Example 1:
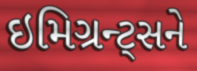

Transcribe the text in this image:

ઇમિગ્રન્ટ્સને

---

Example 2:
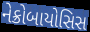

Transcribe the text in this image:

નેક્રોબાયોસિસ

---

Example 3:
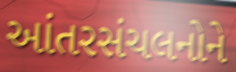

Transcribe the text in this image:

આંતરસંચલનોને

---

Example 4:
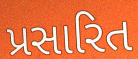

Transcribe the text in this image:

પ્રસારિત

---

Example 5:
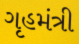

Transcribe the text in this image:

ગૃહમંત્રી